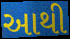
આથી